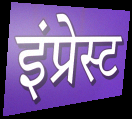
इंप्रेस्ट